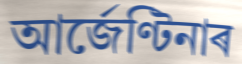
আৰ্জেণ্টিনাৰ